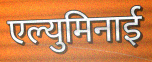
एल्युमिनाई